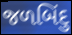
જળબિંદુ